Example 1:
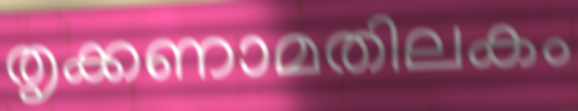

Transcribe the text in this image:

തൃക്കണാമതിലകം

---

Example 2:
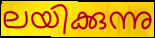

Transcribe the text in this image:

ലയിക്കുന്നു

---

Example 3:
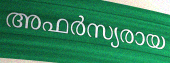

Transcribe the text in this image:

അഫർസ്യരായ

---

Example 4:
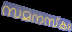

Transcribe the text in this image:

സമനസ്കഃ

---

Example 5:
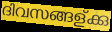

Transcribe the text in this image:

ദിവസങ്ങള്ക്കു